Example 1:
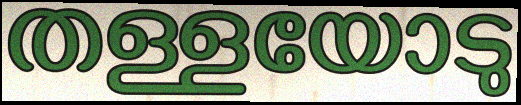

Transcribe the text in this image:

തള്ളയോടു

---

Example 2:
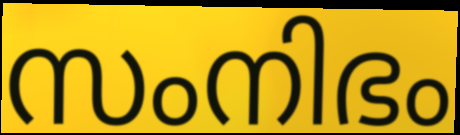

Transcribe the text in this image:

സംനിഭം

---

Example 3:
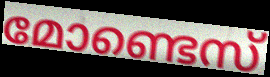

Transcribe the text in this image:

മോണ്ടെസ്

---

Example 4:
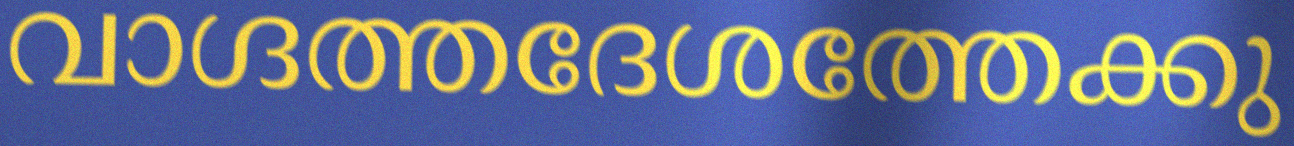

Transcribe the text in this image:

വാഗ്ദത്തദേശത്തേക്കു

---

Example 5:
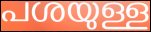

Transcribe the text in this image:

പശയുള്ള